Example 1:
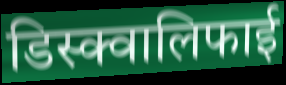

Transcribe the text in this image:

डिस्क्वालिफाई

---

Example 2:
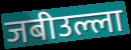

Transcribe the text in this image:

जबीउल्ला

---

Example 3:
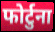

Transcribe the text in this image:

फोर्टुना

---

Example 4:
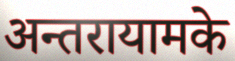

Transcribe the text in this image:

अन्तरायामके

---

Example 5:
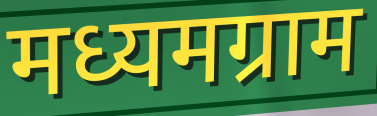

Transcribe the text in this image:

मध्यमग्राम